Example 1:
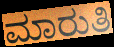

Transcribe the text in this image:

ಮಾರುತಿ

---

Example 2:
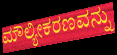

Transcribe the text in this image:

ಮೌಲ್ಯೀಕರಣವನ್ನು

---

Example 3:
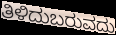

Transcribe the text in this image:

ತಿಳಿದುಬರುವದು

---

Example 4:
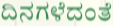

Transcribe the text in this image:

ದಿನಗಳೆದಂತೆ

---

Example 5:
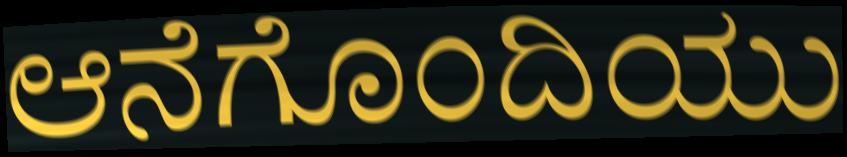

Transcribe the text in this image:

ಆನೆಗೊಂದಿಯು